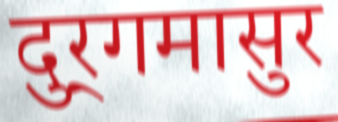
दुर्गमासुर